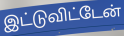
இட்டுவிட்டேன்